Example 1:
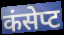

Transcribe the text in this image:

कंसेप्ट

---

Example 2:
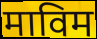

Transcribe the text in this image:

माविम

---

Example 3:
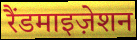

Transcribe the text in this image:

रैंडमाइज़ेशन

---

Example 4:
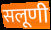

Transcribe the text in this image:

सलूणी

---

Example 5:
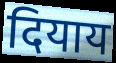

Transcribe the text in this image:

दियाय